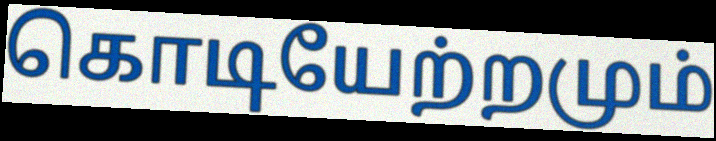
கொடியேற்றமும்